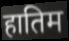
हातिम